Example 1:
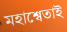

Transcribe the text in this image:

মহাশ্বেতাই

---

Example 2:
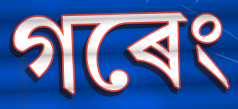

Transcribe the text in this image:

গৰেং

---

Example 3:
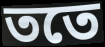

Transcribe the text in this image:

ততে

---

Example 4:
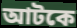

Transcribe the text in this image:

আটকে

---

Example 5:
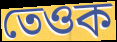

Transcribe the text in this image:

তেওক